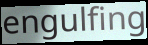
engulfing